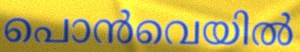
പൊൻവെയിൽ